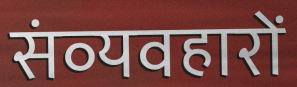
संव्‍यवहारों